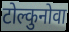
टोल्कुनोवा